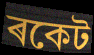
ৰকেট